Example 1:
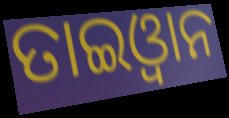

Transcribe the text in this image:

ତାଇଓ୍ୱାନ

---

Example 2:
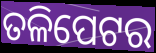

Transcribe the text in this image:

ତଳିପେଟର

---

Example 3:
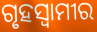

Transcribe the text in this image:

ଗୃହସ୍ୱାମୀର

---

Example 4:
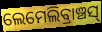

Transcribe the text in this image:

ଲେମେଲିବ୍ରାଞ୍ଚସ୍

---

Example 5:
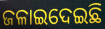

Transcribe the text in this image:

ଜଳାଇଦେଇଛି